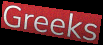
Greeks